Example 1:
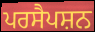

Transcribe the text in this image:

ਪਰਸੈਪਸ਼ਨ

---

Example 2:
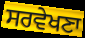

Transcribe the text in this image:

ਸਰਵੇਖਣਾ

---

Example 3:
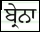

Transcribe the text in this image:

ਬ੍ਰੇਨਾ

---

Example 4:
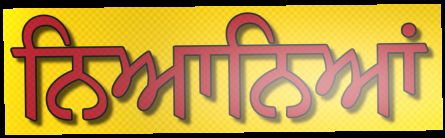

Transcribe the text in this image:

ਨਿਆਨਿਆਂ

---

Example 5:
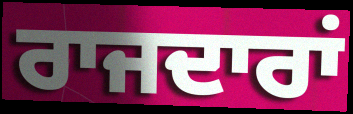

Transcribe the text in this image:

ਰਾਜਦਾਰਾਂ